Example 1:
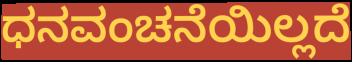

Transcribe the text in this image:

ಧನವಂಚನೆಯಿಲ್ಲದೆ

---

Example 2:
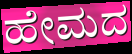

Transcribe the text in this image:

ಹೇಮದ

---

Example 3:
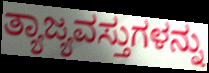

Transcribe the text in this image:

ತ್ಯಾಜ್ಯವಸ್ತುಗಳನ್ನು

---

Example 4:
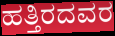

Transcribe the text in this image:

ಹತ್ತಿರದವರ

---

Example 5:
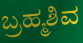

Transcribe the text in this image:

ಬ್ರಹ್ಮಶಿವ